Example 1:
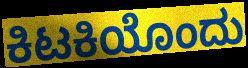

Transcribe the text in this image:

ಕಿಟಕಿಯೊಂದು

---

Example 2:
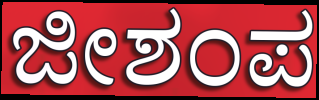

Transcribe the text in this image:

ಜೀಶಂಪ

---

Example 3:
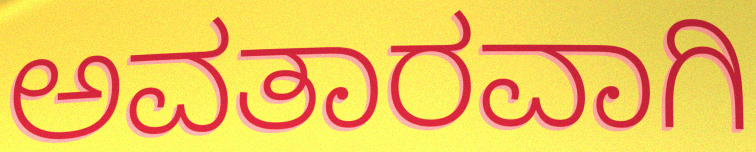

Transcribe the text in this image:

ಅವತಾರವಾಗಿ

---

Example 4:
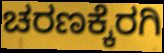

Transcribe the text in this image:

ಚರಣಕ್ಕೆರಗಿ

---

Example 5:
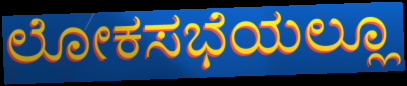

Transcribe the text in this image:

ಲೋಕಸಭೆಯಲ್ಲೂ